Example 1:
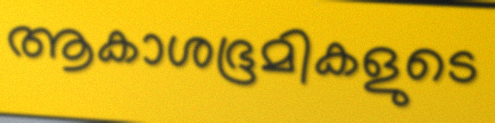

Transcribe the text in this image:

ആകാശഭൂമികളുടെ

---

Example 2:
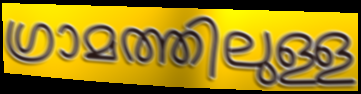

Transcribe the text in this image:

ഗ്രാമത്തിലുള്ള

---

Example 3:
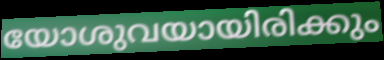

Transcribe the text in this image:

യോശുവയായിരിക്കും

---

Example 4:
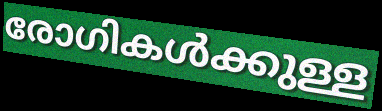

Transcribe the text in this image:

രോഗികൾക്കുള്ള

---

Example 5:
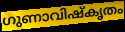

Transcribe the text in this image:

ഗുണാവിഷ്കൃതം